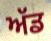
ਅੱਡ